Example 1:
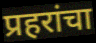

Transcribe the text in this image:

प्रहरांचा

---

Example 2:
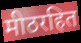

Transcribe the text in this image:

मीठरहित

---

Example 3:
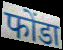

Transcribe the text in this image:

फोंडा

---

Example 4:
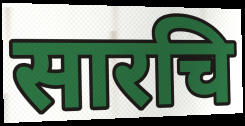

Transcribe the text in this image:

सारचि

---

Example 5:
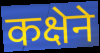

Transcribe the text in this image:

कक्षेने